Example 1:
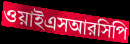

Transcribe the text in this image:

ওয়াইএসআরসিপি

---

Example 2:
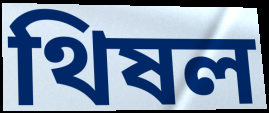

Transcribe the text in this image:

থিষল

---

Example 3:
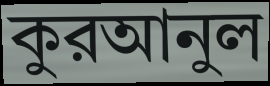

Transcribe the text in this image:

কুরআনুল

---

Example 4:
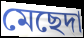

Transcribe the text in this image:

মেছেদা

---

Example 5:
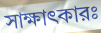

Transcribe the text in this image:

সাক্ষাৎকারঃ